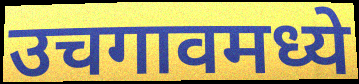
उचगावमध्ये